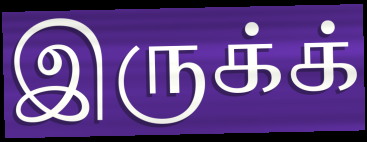
இருக்க்